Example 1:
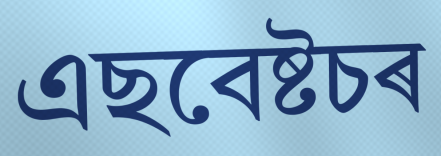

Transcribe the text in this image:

এছবেষ্টচৰ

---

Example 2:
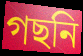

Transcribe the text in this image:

গছনি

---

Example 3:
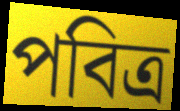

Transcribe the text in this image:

পবিত্ৰ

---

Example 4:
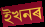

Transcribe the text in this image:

ইখনৰ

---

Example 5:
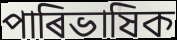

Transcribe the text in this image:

পাৰিভাষিক